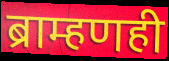
ब्राम्हणही